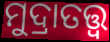
ମୁଦ୍ରାତତ୍ତ୍ବ